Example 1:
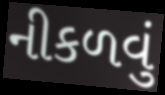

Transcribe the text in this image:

નીકળવું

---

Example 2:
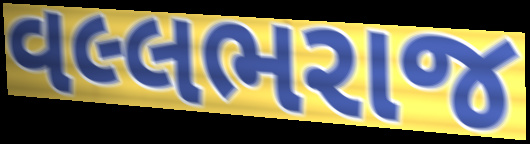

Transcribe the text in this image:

વલ્લભરાજ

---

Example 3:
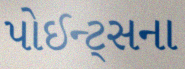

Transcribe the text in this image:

પોઈન્ટ્સના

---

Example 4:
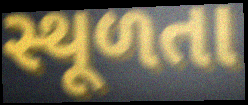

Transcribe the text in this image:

સ્થૂળતા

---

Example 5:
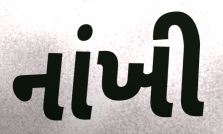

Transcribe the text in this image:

નાંખી